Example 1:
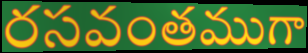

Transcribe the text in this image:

రసవంతముగా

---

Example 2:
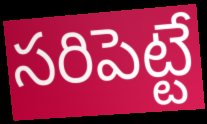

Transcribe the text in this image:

సరిపెట్టే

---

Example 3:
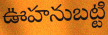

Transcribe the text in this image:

ఊహనుబట్టి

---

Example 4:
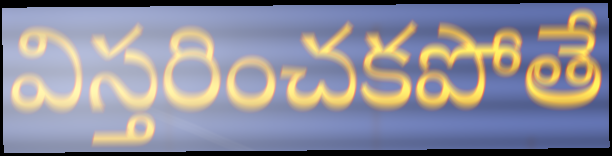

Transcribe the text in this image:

విస్తరించకపోతే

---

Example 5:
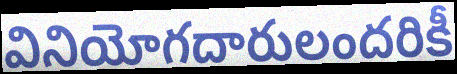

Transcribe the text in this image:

వినియోగదారులందరికీ